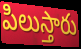
పిలుస్తారు